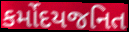
કર્મોદયજનિત